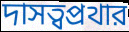
দাসত্বপ্রথার